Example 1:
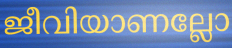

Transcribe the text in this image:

ജീവിയാണല്ലോ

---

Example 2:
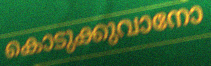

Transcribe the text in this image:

കൊടുക്കുവാനോ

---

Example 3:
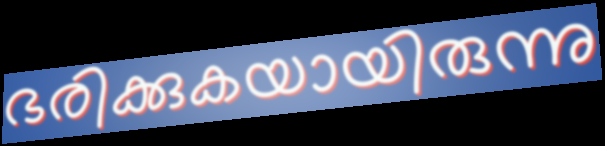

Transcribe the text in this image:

ഭരിക്കുകയായിരുന്നു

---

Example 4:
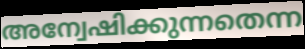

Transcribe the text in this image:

അന്വേഷിക്കുന്നതെന്ന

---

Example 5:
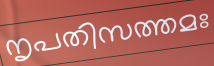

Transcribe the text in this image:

നൃപതിസത്തമഃ